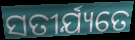
ସତୀର୍ଯ୍ୟତେ